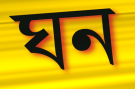
ঘন